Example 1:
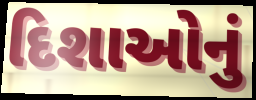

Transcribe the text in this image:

દિશાઓનું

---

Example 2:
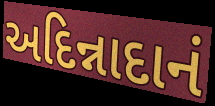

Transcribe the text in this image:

અદિન્નાદાનં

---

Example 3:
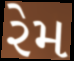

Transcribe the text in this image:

રેમ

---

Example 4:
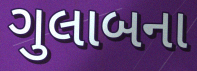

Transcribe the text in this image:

ગુલાબના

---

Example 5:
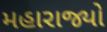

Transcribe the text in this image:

મહારાજ્યો